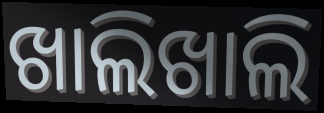
ଖାଲିଖାଲି